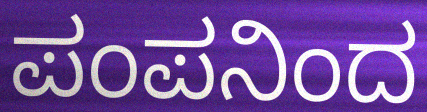
ಪಂಪನಿಂದ